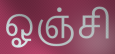
ஓஞ்சி